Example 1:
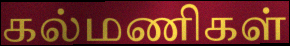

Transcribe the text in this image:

கல்மணிகள்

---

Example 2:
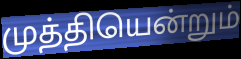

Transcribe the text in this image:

முத்தியென்றும்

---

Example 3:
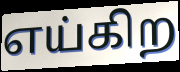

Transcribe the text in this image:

எய்கிற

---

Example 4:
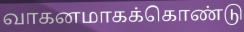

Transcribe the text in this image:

வாகனமாகக்கொண்டு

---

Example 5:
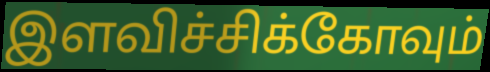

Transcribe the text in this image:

இளவிச்சிக்கோவும்